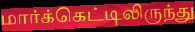
மார்க்கெட்டிலிருந்து